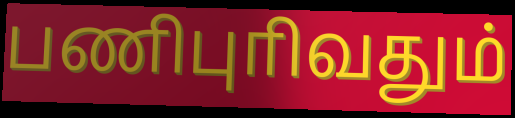
பணிபுரிவதும்